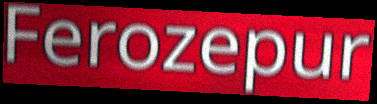
Ferozepur